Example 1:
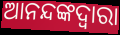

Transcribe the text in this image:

ଆନନ୍ଦଙ୍କଦ୍ୱାରା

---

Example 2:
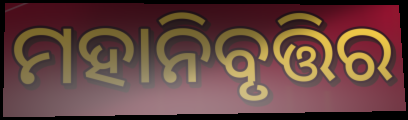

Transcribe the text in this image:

ମହାନିବୃତ୍ତିର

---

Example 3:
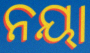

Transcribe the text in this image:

ନୟା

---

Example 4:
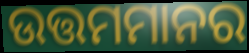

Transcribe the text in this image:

ଉତ୍ତମମାନର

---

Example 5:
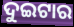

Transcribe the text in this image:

ଦୁଇଟାର